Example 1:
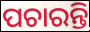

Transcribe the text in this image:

ପଚାରନ୍ତି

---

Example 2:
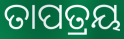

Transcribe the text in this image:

ତାପତ୍ରୟ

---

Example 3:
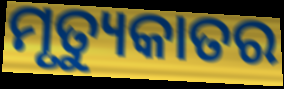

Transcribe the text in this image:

ମୃତ୍ୟୁକାତର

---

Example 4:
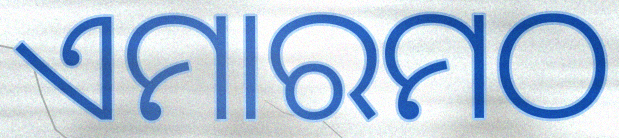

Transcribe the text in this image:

ଏମାରମଠ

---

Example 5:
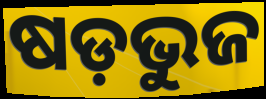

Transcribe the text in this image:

ଷଡ଼ଭୁଜ